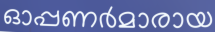
ഓപ്പണർമാരായ